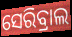
ସେରିବ୍ରାଲ